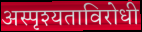
अस्पृश्यताविरोधी